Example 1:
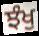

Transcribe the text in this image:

ਝੰਖੁ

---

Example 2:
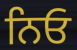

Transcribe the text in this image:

ਨਿਓ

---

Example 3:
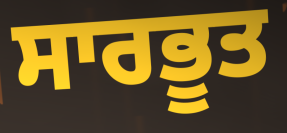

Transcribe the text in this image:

ਸਾਰਭੂਤ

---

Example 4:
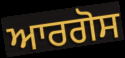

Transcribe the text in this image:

ਆਰਗੋਸ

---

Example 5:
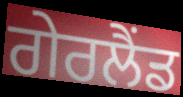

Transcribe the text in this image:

ਗੇਰਲੈਂਡ